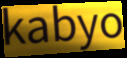
kabyo